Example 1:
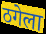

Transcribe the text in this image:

ठगेला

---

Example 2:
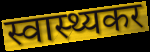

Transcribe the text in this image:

स्वास्थ्यकर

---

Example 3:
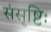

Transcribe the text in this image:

संसृष्टिः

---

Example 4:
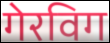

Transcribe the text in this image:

गेरविग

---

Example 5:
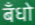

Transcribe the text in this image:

बँधो